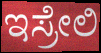
ಇಸ್ರೇಲಿ